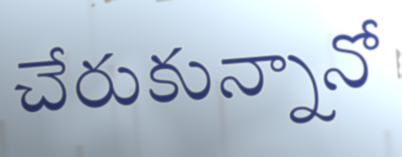
చేరుకున్నానో